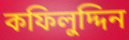
কফিলুদ্দিন